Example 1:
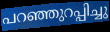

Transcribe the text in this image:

പറഞ്ഞുറപ്പിച്ചു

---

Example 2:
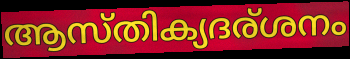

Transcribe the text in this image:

ആസ്തിക്യദര്ശനം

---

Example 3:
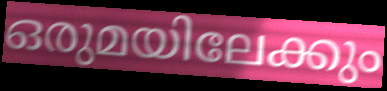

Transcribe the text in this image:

ഒരുമയിലേക്കും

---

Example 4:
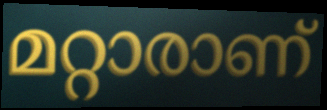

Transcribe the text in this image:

മറ്റാരാണ്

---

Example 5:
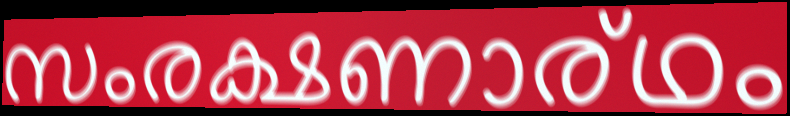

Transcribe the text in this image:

സംരക്ഷണാര്ഥം